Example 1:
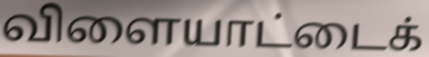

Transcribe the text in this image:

விளையாட்டைக்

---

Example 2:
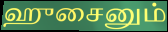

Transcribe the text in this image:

ஹுசைனும்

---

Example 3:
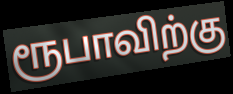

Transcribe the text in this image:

ரூபாவிற்கு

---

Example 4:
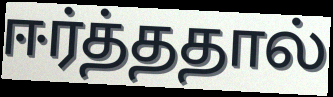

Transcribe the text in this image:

ஈர்த்ததால்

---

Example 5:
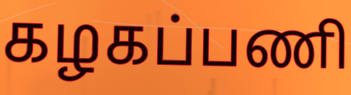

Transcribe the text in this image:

கழகப்பணி